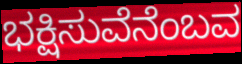
ಭಕ್ಷಿಸುವೆನೆಂಬವ